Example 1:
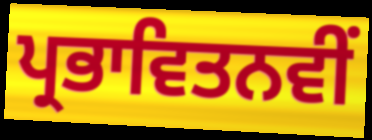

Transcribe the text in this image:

ਪ੍ਰਭਾਵਿਤਨਵੀਂ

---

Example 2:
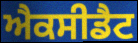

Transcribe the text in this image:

ਐਕਸੀਡੈਟ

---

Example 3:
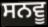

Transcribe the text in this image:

ਸਨਵੂ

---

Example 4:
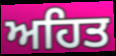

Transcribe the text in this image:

ਅਹਿਤ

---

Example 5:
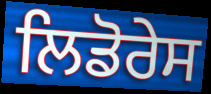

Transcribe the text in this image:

ਲਿਡੋਰੇਸ